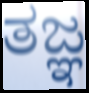
ತಜ್ಞ